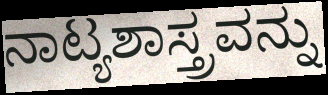
ನಾಟ್ಯಶಾಸ್ತ್ರವನ್ನು